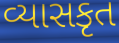
વ્યાસકૃત